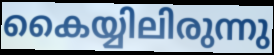
കൈയ്യിലിരുന്നു